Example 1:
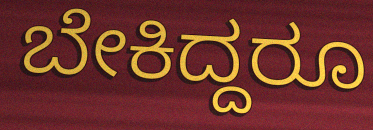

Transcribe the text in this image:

ಬೇಕಿದ್ದರೂ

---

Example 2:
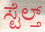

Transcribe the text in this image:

ಸ್ಟೆಲ್ತ್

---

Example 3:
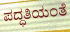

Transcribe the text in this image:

ಪದ್ಧತಿಯಂತೆ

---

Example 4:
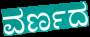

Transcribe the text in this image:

ವರ್ಣದ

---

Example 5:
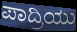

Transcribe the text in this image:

ಪಾದ್ರಿಯು